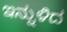
ಇನ್ನುಳಿದ